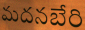
మదనబేరి